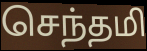
செந்தமி